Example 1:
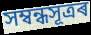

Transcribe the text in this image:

সম্বন্ধসূত্ৰৰ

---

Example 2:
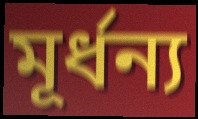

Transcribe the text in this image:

মূৰ্ধন্য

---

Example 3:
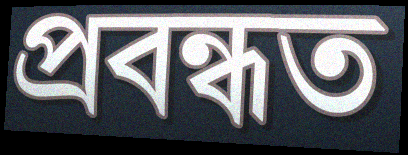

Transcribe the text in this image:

প্ৰবন্ধত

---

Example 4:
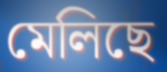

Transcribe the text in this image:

মেলিছে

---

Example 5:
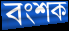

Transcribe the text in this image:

বংশক